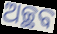
ଅଚ୍ଛବ